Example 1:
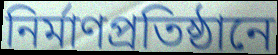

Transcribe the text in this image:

নির্মাণপ্রতিষ্ঠানে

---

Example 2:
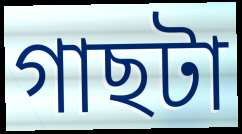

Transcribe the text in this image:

গাছটা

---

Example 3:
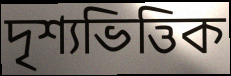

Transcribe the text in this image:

দৃশ্যভিত্তিক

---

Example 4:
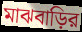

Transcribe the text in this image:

মাঝবাড়ির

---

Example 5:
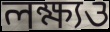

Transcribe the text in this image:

লক্ষ্যও